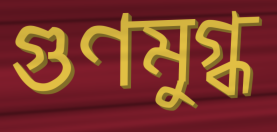
গুণমুগ্ধ